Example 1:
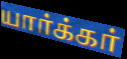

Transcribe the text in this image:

யார்க்கர்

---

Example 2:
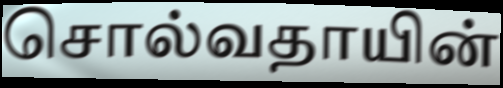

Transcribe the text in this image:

சொல்வதாயின்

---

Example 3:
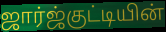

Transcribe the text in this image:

ஜார்ஜ்குட்டியின்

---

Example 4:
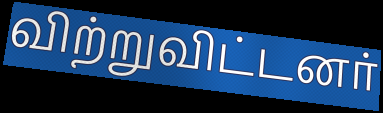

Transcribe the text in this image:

விற்றுவிட்டனர்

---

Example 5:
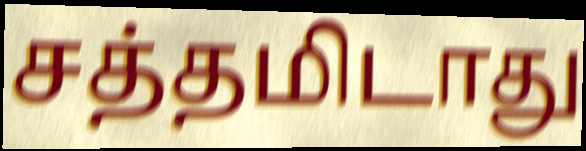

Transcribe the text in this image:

சத்தமிடாது